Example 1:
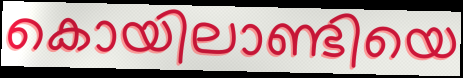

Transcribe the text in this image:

കൊയിലാണ്ടിയെ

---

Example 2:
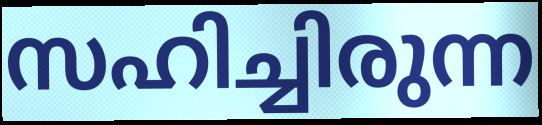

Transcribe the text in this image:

സഹിച്ചിരുന്ന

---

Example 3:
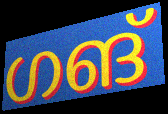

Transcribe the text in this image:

ഗങ്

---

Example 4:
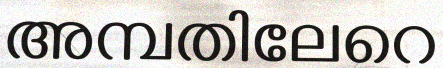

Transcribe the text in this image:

അമ്പതിലേറെ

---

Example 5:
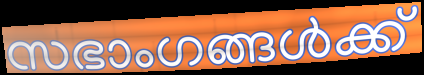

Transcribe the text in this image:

സഭാംഗങ്ങൾക്ക്